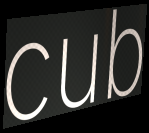
cub